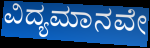
ವಿದ್ಯಮಾನವೇ